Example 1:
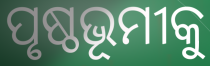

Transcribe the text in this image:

ପୃଷ୍ଠଭୂମୀକୁ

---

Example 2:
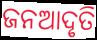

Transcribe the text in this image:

ଜନଆଦୃତି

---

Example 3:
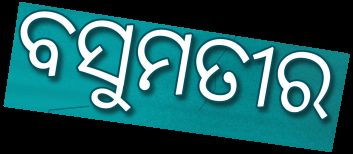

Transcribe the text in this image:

ବସୁମତୀର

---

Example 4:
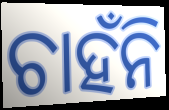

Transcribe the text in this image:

ଚାହଁନି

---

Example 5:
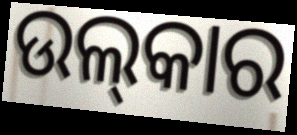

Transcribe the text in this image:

ଉଲ୍‌କାର